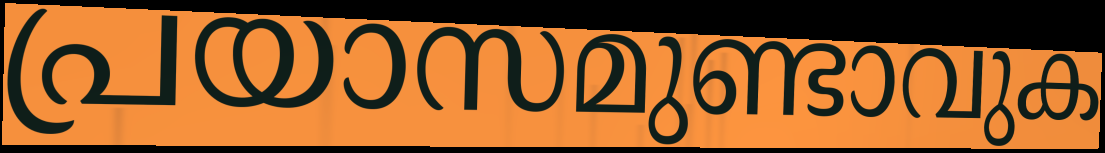
പ്രയാസമുണ്ടാവുക